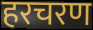
हरचरण